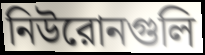
নিউরোনগুলি